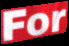
For